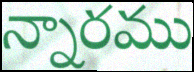
న్నారము